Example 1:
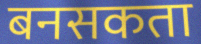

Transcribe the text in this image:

बनसकता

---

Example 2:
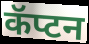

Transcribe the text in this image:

कॅप्टन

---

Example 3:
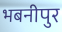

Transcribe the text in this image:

भबनीपुर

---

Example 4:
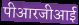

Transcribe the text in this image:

पीआरजीआई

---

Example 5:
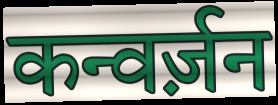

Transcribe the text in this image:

कन्वर्ज़न